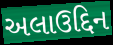
અલાઉદ્દિન